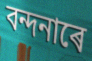
বন্দনাৰে